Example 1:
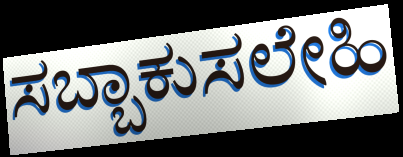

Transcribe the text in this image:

ಸಬ್ಬಾಕುಸಲೇಹಿ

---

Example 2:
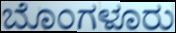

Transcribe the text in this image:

ಬೊಂಗಳೂರು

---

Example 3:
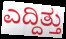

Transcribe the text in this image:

ಎದ್ದಿತ್ತು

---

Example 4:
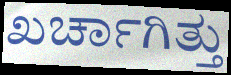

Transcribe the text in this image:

ಖರ್ಚಾಗಿತ್ತು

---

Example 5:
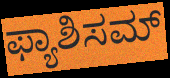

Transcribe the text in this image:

ಫ್ಯಾಶಿಸಮ್